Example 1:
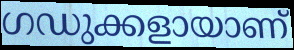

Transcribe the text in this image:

ഗഡുക്കളായാണ്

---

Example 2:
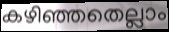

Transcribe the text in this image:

കഴിഞ്ഞതെല്ലാം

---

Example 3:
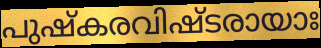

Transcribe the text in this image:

പുഷ്കരവിഷ്ടരായാഃ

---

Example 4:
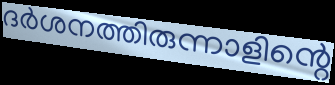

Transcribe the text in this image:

ദർശനത്തിരുന്നാളിന്റെ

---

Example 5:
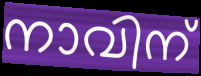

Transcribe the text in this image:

നാവിന്